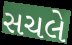
સચલે